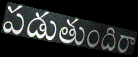
పడుతుందిరా